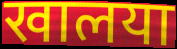
खालया